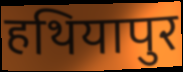
हथियापुर